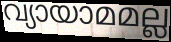
വ്യായാമമല്ല